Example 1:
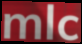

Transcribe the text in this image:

mlc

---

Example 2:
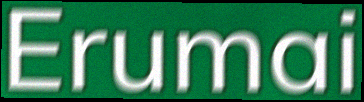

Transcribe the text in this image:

Erumai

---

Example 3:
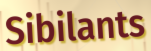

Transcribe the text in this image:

Sibilants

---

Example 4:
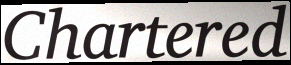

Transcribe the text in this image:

Chartered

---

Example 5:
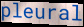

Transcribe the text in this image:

pleural